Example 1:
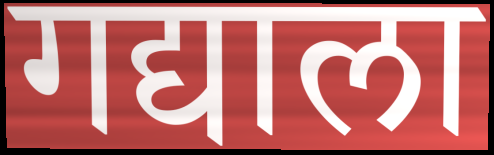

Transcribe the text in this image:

गद्याला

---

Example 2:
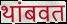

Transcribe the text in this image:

थांबवत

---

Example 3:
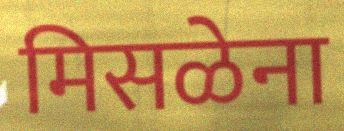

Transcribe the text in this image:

मिसळेना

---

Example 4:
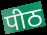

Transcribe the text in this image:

पीठ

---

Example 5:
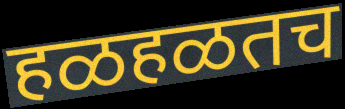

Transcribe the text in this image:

हळहळतच